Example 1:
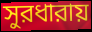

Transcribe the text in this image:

সুরধারায়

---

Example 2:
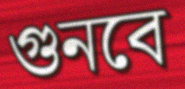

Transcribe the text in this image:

গুনবে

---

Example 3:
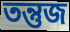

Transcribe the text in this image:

তন্তুজ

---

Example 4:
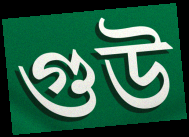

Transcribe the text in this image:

গুউ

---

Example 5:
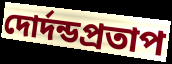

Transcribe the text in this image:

দোর্দন্ডপ্রতাপ